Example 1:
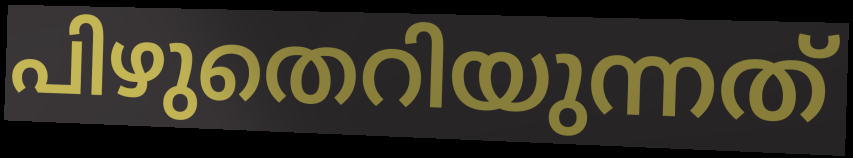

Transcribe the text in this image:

പിഴുതെറിയുന്നത്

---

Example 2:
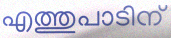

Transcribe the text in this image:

എത്തുപാടിന്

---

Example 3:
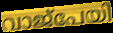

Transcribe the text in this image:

വാജ്പേയി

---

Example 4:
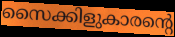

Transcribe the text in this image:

സൈക്കിളുകാരന്റെ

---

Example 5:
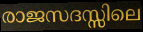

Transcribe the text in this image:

രാജസദസ്സിലെ